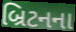
બ્રિટનના